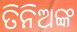
ତିନିଅଙ୍କ